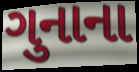
ગુનાના